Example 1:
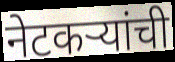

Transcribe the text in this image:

नेटकऱ्यांची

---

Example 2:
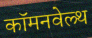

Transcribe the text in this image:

कॉमनवेल्थ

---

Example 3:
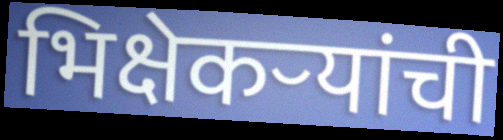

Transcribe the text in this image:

भिक्षेकऱ्यांची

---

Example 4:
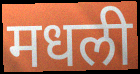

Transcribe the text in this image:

मधली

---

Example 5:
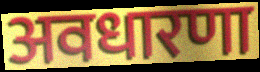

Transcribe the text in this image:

अवधारणा